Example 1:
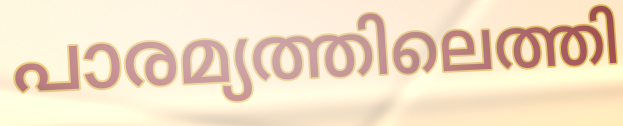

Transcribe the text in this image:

പാരമ്യത്തിലെത്തി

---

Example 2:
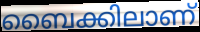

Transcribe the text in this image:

ബൈക്കിലാണ്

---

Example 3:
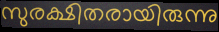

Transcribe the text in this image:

സുരക്ഷിതരായിരുന്നു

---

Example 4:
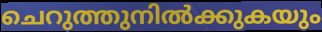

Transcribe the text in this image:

ചെറുത്തുനിൽക്കുകയും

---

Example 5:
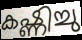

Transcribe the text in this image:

കഷ്ണിച്ചു